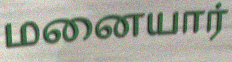
மனையார்